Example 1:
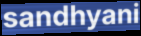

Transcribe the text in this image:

sandhyani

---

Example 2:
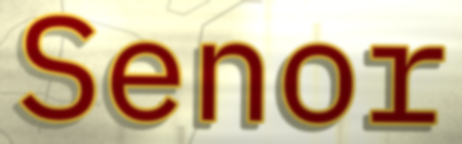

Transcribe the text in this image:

Senor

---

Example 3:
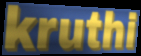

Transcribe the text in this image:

kruthi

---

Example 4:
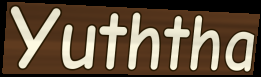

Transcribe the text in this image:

Yuththa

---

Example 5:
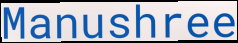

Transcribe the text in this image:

Manushree